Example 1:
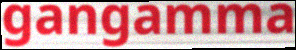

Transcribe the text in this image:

gangamma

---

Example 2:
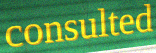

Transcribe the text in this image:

consulted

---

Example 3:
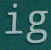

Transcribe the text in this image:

ig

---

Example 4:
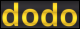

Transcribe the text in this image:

dodo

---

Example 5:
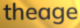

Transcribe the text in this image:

theage